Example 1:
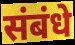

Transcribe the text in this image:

संबंधे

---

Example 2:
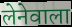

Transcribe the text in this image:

लेनेवाला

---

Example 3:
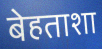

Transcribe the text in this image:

बेहताशा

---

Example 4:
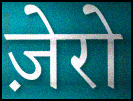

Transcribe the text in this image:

ज़ेरो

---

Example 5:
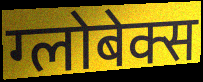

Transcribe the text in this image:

ग्लोबेक्स